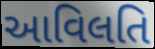
આવિલતિ